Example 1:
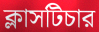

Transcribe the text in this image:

ক্লাসটিচার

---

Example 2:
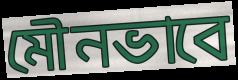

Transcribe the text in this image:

মৌনভাবে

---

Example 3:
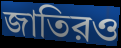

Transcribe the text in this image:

জাতিরও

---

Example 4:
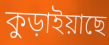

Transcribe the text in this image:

কুড়াইয়াছে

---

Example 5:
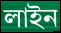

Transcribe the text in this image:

লাইন